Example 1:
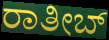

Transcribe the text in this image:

ರಾತೀಬ್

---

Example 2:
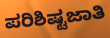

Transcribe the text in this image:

ಪರಿಶಿಷ್ಟಜಾತಿ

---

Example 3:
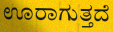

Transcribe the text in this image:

ಊರಾಗುತ್ತದೆ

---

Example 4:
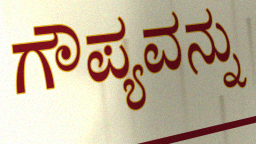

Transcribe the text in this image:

ಗೌಪ್ಯವನ್ನು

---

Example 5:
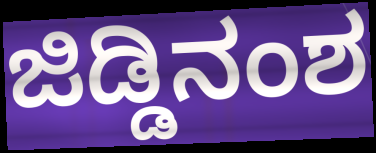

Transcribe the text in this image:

ಜಿಡ್ಡಿನಂಶ